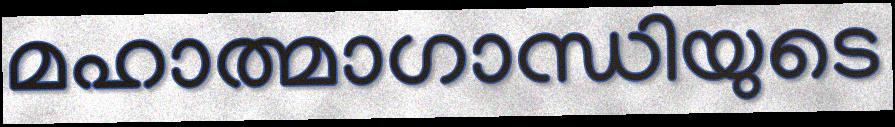
മഹാത്മാഗാന്ധിയുടെ